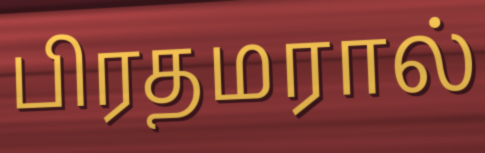
பிரதமரால்